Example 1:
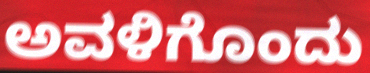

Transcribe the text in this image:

ಅವಳಿಗೊಂದು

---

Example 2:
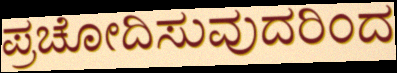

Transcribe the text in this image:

ಪ್ರಚೋದಿಸುವುದರಿಂದ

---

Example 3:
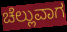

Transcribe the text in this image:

ಚೆಲ್ಲುವಾಗ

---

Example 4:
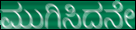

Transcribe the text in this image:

ಮುಗಿಸಿದನೇ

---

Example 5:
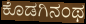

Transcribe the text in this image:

ಕೊಡಗಿನಂಥ